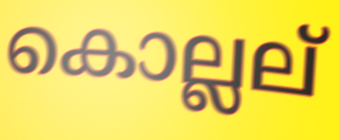
കൊല്ലല്